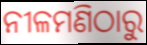
ନୀଳମଣିଠାରୁ